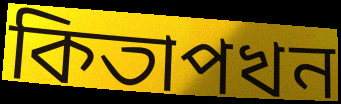
কিতাপখন